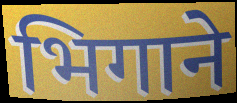
भिगाने